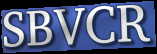
SBVCR